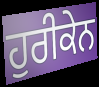
ਹੁਰੀਕੇਨ